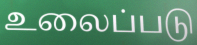
உலைப்படு